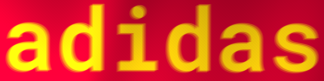
adidas